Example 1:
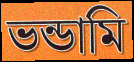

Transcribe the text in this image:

ভন্ডামি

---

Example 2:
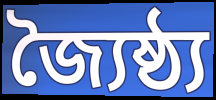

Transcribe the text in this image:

জ্যৈষ্ঠ্য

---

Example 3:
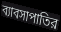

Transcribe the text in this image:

ব্যাবসাপাতির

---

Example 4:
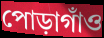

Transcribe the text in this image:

পোড়াগাঁও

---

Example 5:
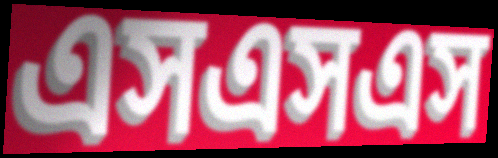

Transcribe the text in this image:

এসএসএস